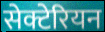
सेक्टेरियन